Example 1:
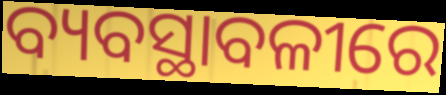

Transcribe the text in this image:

ବ୍ୟବସ୍ଥାବଳୀରେ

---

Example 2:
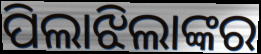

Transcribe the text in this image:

ପିଲାଝିଲାଙ୍କର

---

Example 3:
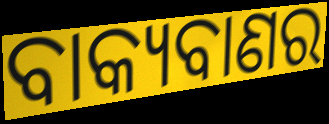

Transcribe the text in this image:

ବାକ୍ୟବାଣର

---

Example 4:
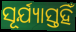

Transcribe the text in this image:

ସୂର୍ଯ୍ୟାସ୍ତହିଁ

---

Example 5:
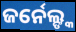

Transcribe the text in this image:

ଜର୍ନେଲ୍ଙ୍କ